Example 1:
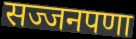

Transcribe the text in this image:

सज्जनपणा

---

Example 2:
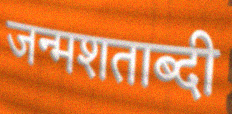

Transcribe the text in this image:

जन्मशताब्दी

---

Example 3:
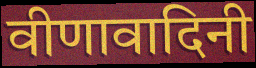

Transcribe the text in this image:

वीणावादिनी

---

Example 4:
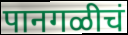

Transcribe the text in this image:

पानगळीचं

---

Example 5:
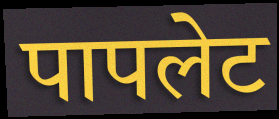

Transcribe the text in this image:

पापलेट